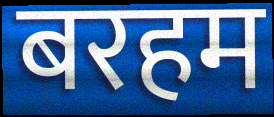
बरहम